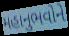
મહાનુભવોને